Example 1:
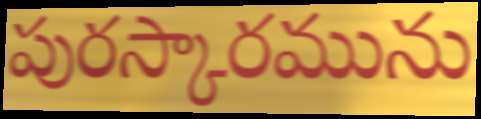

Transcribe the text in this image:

పురస్కారమును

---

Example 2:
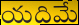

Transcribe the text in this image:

యదిమే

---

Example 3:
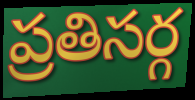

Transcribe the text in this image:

ప్రతిసర్గ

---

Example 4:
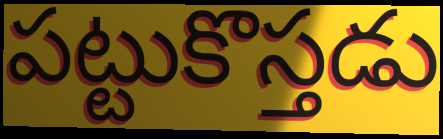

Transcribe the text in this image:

పట్టుకొస్తడు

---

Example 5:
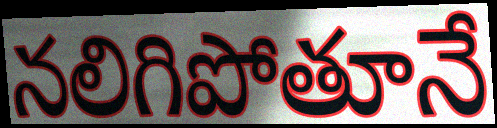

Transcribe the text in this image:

నలిగిపోతూనే